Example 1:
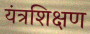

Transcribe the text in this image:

यंत्रशिक्षण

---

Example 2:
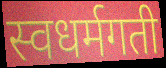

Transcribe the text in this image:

स्वधर्मगती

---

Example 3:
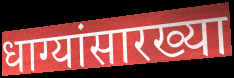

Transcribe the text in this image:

धाग्यांसारख्या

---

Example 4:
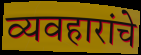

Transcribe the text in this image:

व्यवहारांचे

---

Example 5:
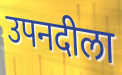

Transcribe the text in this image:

उपनदीला